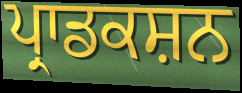
ਪ੍ਰਾਡਕਸ਼ਨ